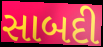
સાબદી